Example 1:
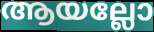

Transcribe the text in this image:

ആയല്ലോ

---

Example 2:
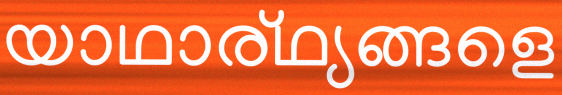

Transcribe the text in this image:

യാഥാര്ഥ്യങ്ങളെ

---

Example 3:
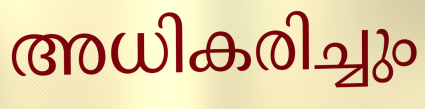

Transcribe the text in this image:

അധികരിച്ചും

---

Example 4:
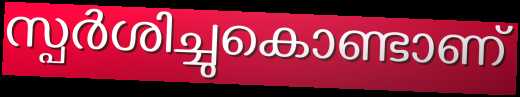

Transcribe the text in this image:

സ്പർശിച്ചുകൊണ്ടാണ്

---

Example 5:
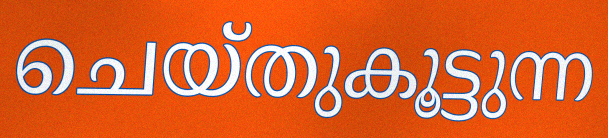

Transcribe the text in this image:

ചെയ്തുകൂട്ടുന്ന